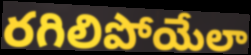
రగిలిపోయేలా